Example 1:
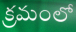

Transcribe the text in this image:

క్రమంలో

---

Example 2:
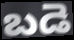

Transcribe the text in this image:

బడె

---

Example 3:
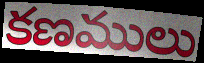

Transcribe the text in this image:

కణములు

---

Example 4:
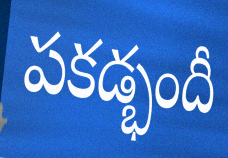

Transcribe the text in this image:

పకడ్భందీ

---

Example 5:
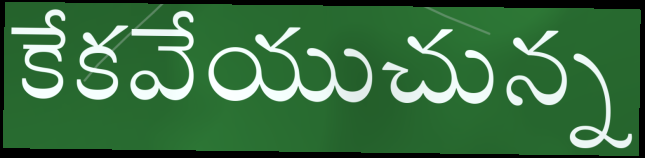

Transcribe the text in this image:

కేకవేయుచున్న